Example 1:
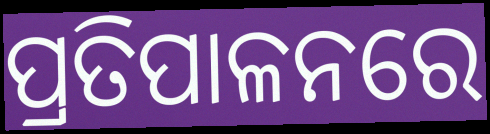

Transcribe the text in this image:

ପ୍ରତିପାଳନରେ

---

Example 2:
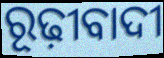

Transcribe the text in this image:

ରୂଢ଼ୀବାଦୀ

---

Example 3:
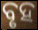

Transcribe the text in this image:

ବୃହ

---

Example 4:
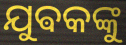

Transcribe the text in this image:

ଯୁଵକଙ୍କୁ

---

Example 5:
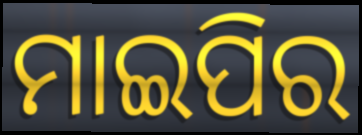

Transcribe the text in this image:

ମାଇପିର